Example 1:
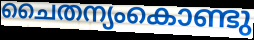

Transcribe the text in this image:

ചൈതന്യംകൊണ്ടു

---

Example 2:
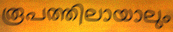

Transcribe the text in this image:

രൂപത്തിലായാലും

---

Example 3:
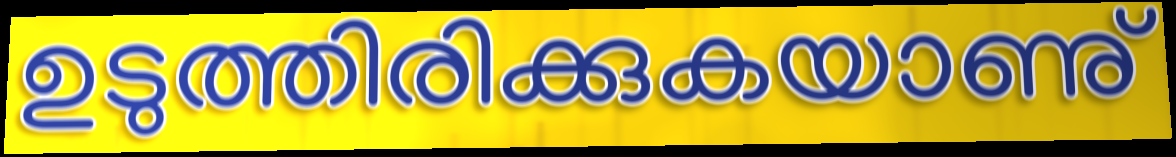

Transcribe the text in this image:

ഉടുത്തിരിക്കുകയാണു്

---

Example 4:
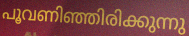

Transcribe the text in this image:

പൂവണിഞ്ഞിരിക്കുന്നു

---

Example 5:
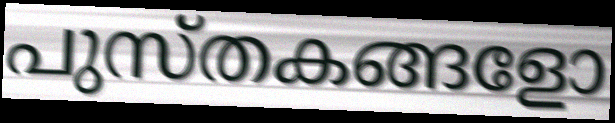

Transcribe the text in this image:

പുസ്തകങ്ങളോ